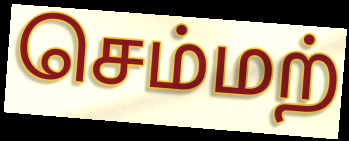
செம்மற்